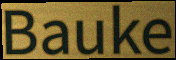
Bauke